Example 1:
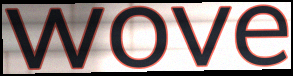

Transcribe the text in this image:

wove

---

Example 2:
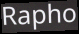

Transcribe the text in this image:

Rapho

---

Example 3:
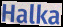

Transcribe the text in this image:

Halka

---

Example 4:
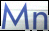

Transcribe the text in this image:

Mn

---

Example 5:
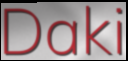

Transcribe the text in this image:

Daki